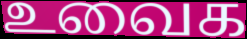
உவைக